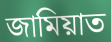
জামিয়াত